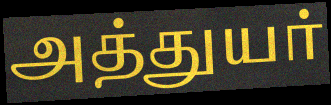
அத்துயர்